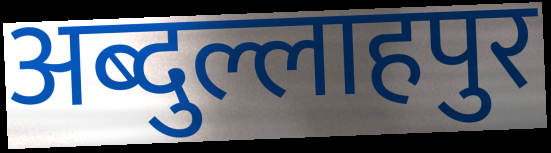
अब्दुल्लाहपुर